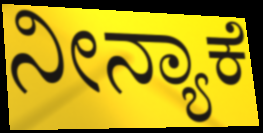
ನೀನ್ಯಾಕೆ